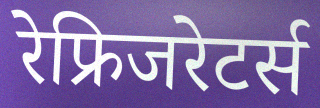
रेफ्रिजरेटर्स